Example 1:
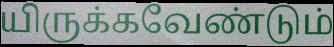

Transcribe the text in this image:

யிருக்கவேண்டும்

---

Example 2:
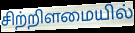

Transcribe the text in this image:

சிற்றிளமையில்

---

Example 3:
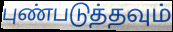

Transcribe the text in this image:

புண்படுத்தவும்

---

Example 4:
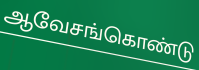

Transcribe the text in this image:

ஆவேசங்கொண்டு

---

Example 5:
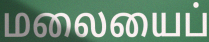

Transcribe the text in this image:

மலையைப்